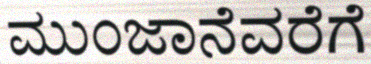
ಮುಂಜಾನೆವರೆಗೆ